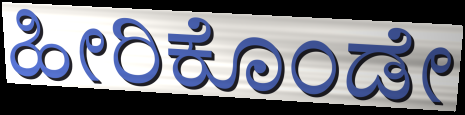
ಹೀರಿಕೊಂಡೇ